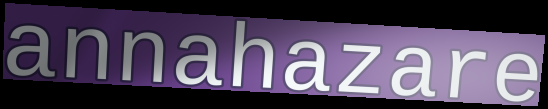
annahazare